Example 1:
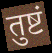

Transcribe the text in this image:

तुष्टं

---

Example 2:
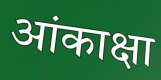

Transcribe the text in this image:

आंकाक्षा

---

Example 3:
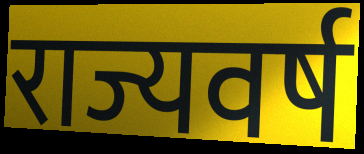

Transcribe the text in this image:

राज्यवर्ष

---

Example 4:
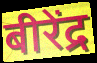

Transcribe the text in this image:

बीरेंद्र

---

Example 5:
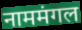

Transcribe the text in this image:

नाममंगल